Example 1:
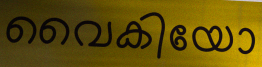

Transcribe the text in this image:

വൈകിയോ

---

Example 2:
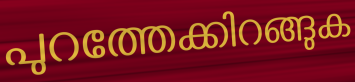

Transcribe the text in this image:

പുറത്തേക്കിറങ്ങുക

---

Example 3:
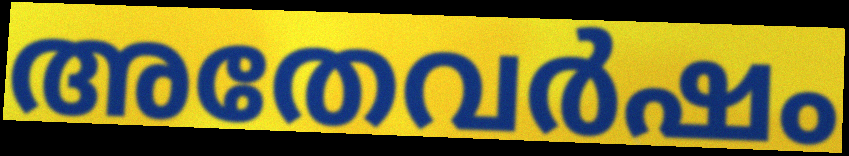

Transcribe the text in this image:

അതേവർഷം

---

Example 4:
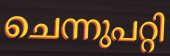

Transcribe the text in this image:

ചെന്നുപറ്റി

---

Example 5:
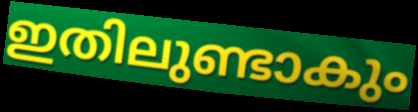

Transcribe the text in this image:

ഇതിലുണ്ടാകും